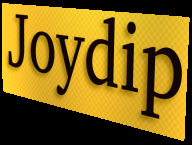
Joydip